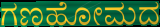
ಗಣಹೋಮದ